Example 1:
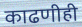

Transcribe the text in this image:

काढणीही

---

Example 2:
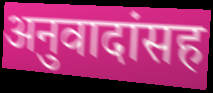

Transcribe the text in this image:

अनुवादांसह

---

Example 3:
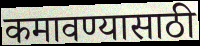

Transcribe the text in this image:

कमावण्यासाठी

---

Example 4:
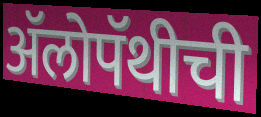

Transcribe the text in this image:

ॲलोपॅथीची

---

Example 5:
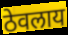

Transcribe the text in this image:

ठेवलाय